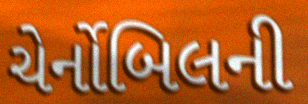
ચેર્નોબિલની